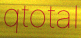
qtotal